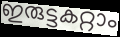
ഇരുട്ടകറ്റാം